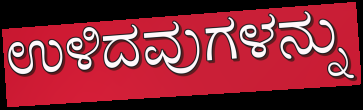
ಉಳಿದವುಗಳನ್ನು